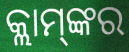
କ୍ଲାମ୍‌ଙ୍କର